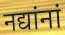
नद्यांनां